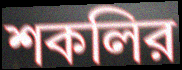
শকলির